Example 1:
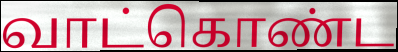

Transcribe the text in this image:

வாட்கொண்ட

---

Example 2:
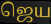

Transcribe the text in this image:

ஜெய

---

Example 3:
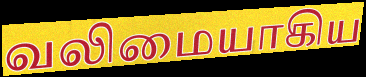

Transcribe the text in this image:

வலிமையாகிய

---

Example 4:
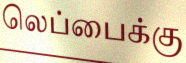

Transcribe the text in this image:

லெப்பைக்கு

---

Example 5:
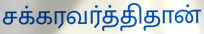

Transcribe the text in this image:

சக்கரவர்த்திதான்